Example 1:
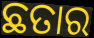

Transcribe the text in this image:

ଛତାର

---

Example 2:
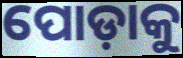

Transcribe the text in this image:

ପୋଡ଼ାକୁ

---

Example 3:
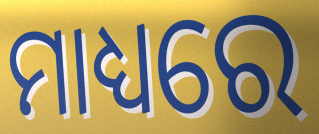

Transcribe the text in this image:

ମାଧ୍ୟରେ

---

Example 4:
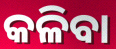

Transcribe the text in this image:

କଳିବା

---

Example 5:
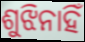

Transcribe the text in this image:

ଶୁଝିନାହିଁ